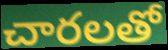
చారలతో